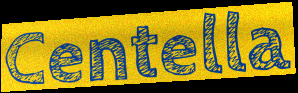
Centella